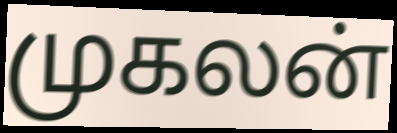
முகலன்